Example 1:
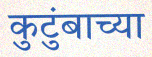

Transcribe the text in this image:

कुटुंबाच्या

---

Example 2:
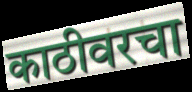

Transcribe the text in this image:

काठीवरचा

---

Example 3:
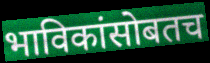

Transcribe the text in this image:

भाविकांसोबतच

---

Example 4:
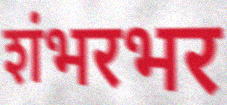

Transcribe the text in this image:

शंभरभर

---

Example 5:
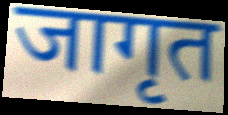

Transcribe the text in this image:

जागृत